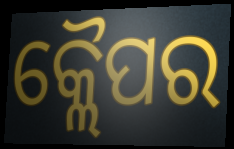
କ୍ଲୈପର